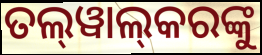
ତଲ୍‌ୱାଲ୍‌କରଙ୍କୁ